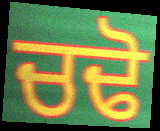
ਚਢੋ